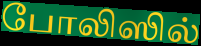
போலிஸில்